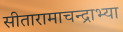
सीतारामाचन्द्राभ्या